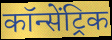
कॉन्सेंट्रिक